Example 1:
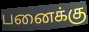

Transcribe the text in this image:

பனைக்கு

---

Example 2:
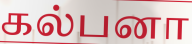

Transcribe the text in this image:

கல்பனா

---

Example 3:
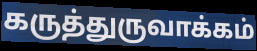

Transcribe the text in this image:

கருத்துருவாக்கம்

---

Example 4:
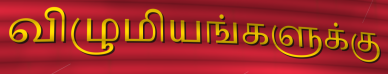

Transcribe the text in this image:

விழுமியங்களுக்கு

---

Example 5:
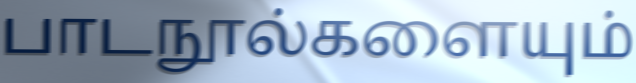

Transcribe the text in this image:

பாடநூல்களையும்